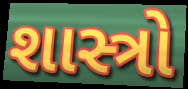
શાસ્ત્રો